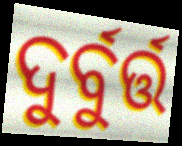
ଦୁର୍ବୁର୍ତ୍ତ